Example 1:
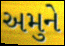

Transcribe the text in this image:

અમુને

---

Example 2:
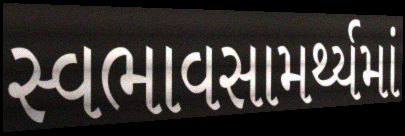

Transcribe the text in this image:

સ્વભાવસામર્થ્યમાં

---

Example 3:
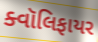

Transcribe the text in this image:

ક્વૉલિફાયર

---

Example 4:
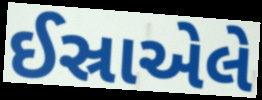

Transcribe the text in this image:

ઈસ્રાએલે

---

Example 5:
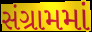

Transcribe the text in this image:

સંગ્રામમાં